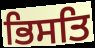
ਭਿਸਤਿ